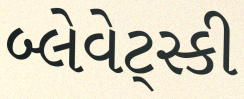
બ્લેવેટ્સ્કી